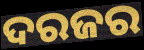
ଦରଜର